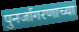
पुनर्जागरणाच्या